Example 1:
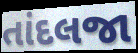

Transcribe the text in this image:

તાંદલજા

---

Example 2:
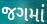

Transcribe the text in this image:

જગમાં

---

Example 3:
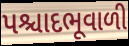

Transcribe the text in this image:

પશ્ચાદભૂવાળી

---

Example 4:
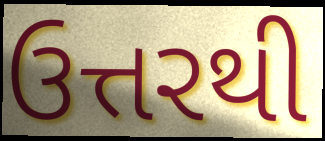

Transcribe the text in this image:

ઉત્તરથી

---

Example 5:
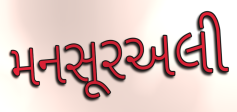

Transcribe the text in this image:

મનસૂરઅલી